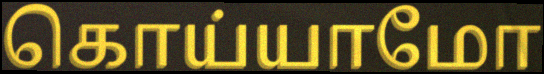
கொய்யாமோ